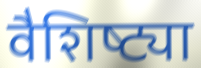
वैशिष्ट्या